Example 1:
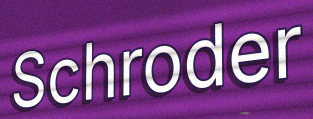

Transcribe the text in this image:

Schroder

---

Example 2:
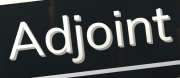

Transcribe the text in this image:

Adjoint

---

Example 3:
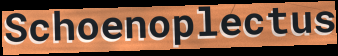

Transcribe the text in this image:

Schoenoplectus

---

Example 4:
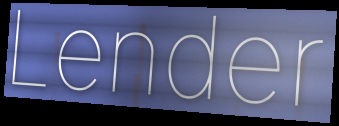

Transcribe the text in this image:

Lender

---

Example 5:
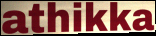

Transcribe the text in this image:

athikka